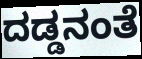
ದಡ್ಡನಂತೆ